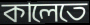
কালেতে